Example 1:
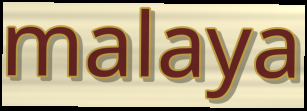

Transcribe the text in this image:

malaya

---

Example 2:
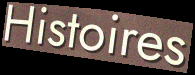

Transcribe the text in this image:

Histoires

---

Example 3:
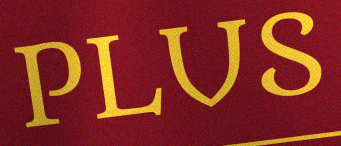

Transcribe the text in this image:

PLUS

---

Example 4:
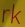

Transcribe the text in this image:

rk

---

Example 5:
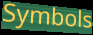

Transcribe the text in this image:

Symbols